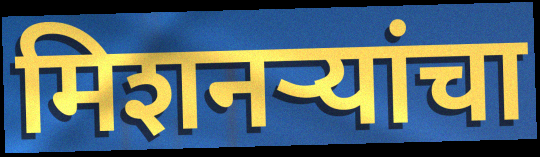
मिशनऱ्यांचा